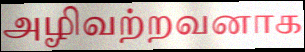
அழிவற்றவனாக